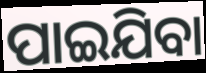
ପାଇଯିବା